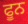
ਫੂਨ